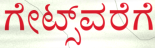
ಗೇಟ್ಸ್‌ವರೆಗೆ